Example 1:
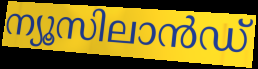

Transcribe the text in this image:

ന്യൂസിലാൻഡ്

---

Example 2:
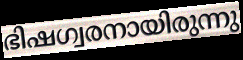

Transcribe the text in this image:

ഭിഷഗ്വരനായിരുന്നു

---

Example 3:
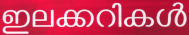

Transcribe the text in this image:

ഇലക്കറികൾ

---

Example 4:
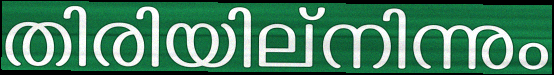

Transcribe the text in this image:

തിരിയില്നിന്നും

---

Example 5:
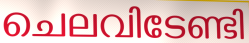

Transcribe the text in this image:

ചെലവിടേണ്ടി